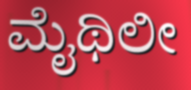
ಮೈಥಿಲೀ